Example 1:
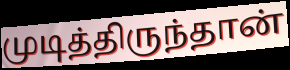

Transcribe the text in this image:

முடித்திருந்தான்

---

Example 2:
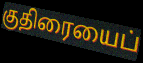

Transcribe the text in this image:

குதிரையைப்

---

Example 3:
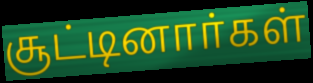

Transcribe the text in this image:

சூட்டினார்கள்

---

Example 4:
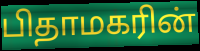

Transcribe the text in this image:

பிதாமகரின்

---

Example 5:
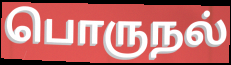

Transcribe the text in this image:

பொருநல்